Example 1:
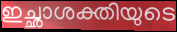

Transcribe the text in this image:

ഇച്ഛാശക്തിയുടെ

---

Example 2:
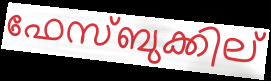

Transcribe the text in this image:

ഫേസ്ബുക്കില്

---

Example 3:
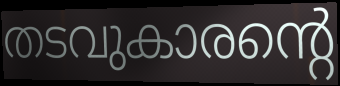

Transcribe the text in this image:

തടവുകാരന്റെ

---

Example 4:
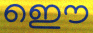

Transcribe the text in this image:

ഇൌ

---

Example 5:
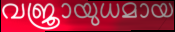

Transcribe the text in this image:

വജ്രായുധമായ